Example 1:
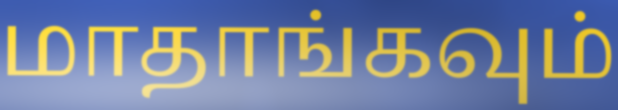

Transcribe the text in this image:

மாதாங்கவும்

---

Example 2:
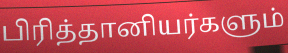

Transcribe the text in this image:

பிரித்தானியர்களும்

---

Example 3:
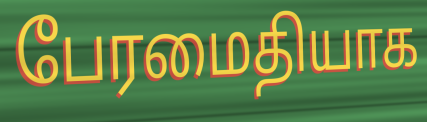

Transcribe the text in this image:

பேரமைதியாக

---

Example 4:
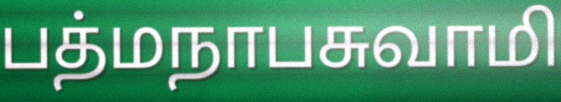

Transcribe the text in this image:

பத்மநாபசுவாமி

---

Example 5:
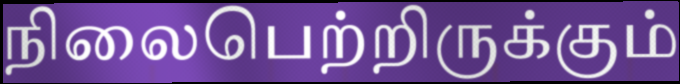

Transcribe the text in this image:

நிலைபெற்றிருக்கும்